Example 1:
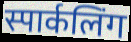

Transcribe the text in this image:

स्पार्कलिंग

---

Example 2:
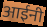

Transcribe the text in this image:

आईनी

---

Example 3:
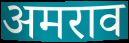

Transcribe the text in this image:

अमराव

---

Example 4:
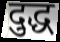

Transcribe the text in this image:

दुद्ध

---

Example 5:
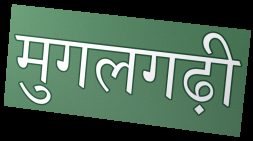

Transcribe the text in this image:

मुगलगढ़ी